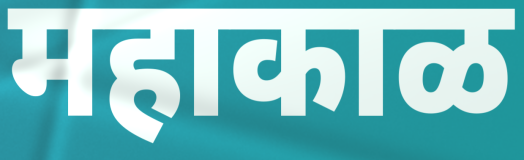
महाकाळ